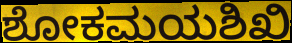
ಶೋಕಮಯಶಿಖಿ